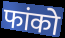
फांको